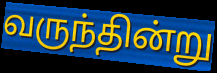
வருந்தின்று